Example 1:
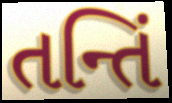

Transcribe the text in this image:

તન્તિં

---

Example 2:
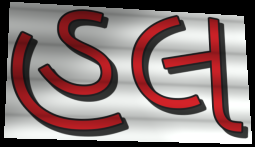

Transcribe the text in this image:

હલ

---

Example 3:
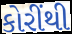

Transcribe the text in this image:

કોરીંથી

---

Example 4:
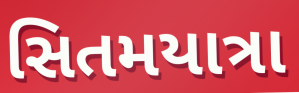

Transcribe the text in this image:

સિતમયાત્રા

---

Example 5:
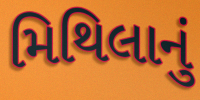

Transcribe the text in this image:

મિથિલાનું